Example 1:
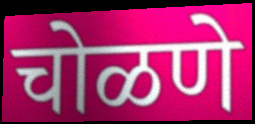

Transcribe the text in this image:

चोळणे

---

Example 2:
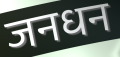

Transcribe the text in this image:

जनधन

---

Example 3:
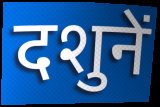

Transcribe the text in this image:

दशुनें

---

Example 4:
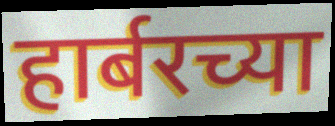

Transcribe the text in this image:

हार्बरच्या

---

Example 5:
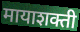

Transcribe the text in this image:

मायाशक्ती